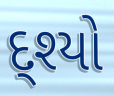
દ્શ્યો